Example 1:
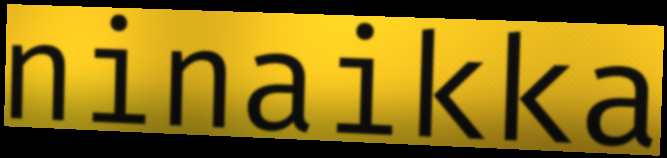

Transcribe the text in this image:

ninaikka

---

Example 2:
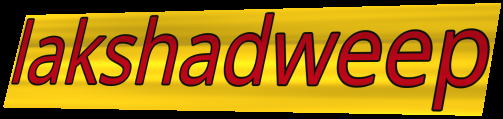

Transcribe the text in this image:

lakshadweep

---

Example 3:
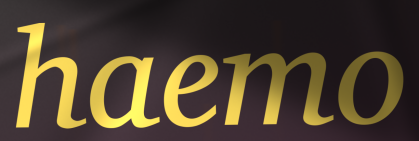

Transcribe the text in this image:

haemo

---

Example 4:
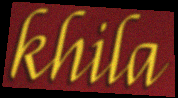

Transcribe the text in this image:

khila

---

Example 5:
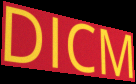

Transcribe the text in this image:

DICM